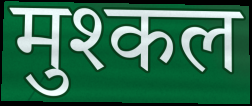
मुश्कल